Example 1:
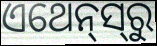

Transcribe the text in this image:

ଏଥେନ୍‌ସ୍‌ରୁ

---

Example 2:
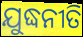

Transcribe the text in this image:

ଯୁଦ୍ଧନୀତି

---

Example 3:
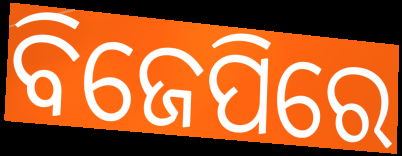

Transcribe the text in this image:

ବିଜେପିରେ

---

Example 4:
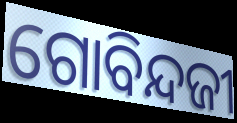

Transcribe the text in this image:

ଗୋବିନ୍ଦଜୀ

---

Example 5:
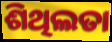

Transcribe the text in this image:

ଶିଥିଲତା